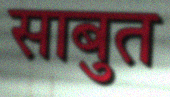
साबुत